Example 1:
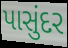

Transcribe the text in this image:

પાસુંદર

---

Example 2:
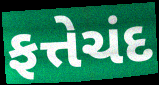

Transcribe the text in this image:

ફત્તેચંદ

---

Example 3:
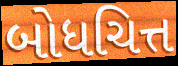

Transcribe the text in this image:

બોધચિત્ત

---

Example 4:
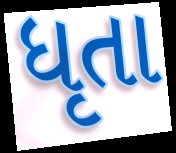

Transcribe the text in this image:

ધૃતા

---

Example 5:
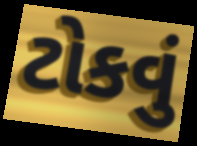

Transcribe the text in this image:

ટોકવું